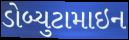
ડોબ્યુટામાઇન